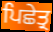
ਪਿਛੇਤ੍ਰ